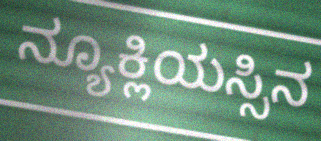
ನ್ಯೂಕ್ಲಿಯಸ್ಸಿನ